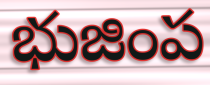
భుజింప